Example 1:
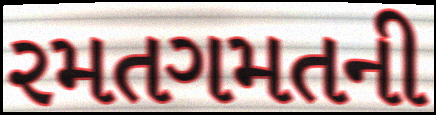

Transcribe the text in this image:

રમતગમતની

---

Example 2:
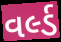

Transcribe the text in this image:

વર્લ્ડ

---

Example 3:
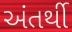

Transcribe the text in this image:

અંતર્થી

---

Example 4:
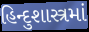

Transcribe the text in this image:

હિન્દુશાસ્ત્રમાં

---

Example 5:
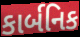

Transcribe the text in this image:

કાર્બનિક